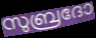
സുബ്രദോ